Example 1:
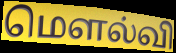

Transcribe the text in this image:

மௌல்வி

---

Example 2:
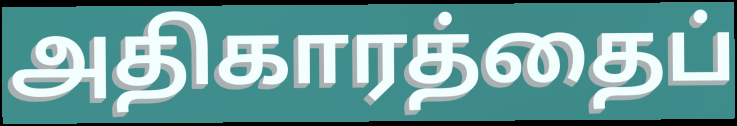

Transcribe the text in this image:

அதிகாரத்தைப்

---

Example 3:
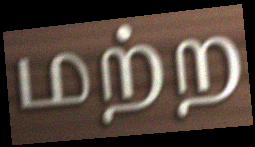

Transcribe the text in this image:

மற்ற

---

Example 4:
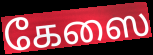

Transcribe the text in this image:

கேஸை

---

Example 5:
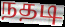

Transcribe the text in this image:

நதடி